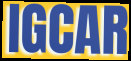
IGCAR